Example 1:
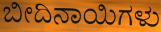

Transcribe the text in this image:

ಬೀದಿನಾಯಿಗಳು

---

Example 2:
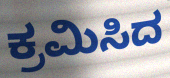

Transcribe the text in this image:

ಕ್ರಮಿಸಿದ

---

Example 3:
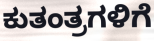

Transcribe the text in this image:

ಕುತಂತ್ರಗಳಿಗೆ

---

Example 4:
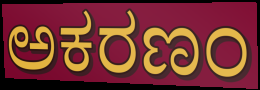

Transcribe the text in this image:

ಅಕರಣಂ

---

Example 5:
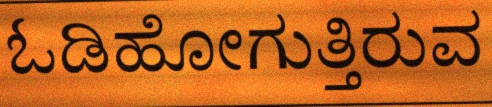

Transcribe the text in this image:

ಓಡಿಹೋಗುತ್ತಿರುವ